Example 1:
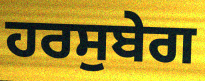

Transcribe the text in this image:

ਹਰਸੁਬੇਗ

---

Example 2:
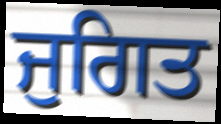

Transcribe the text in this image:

ਜੁਗਿਤ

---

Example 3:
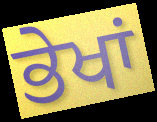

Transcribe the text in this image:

ਭੇਖਾਂ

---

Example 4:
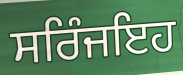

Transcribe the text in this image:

ਸਰਿੰਜਇਹ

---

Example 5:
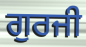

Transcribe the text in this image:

ਗੁਰਜੀ